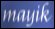
mayik